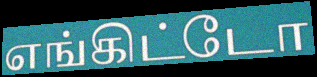
எங்கிட்டோ